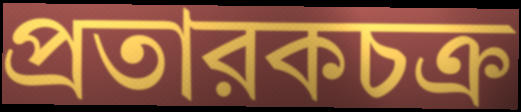
প্রতারকচক্র